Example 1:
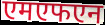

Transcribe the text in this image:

एमएफएन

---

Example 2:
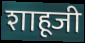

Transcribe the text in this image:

शाहूजी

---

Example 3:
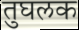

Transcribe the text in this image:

तुघलक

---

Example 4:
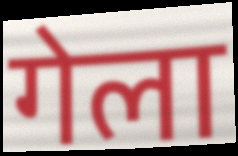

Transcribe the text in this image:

गेला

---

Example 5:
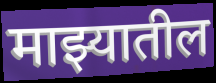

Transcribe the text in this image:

माझ्यातील